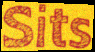
Sits